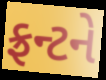
ફ્રન્ટને